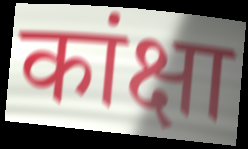
कांक्षा